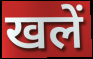
खलें